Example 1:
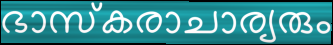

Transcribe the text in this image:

ഭാസ്കരാചാര്യരും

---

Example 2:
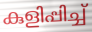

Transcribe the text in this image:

കുളിപ്പിച്ച്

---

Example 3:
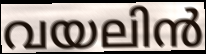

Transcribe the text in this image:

വയലിൻ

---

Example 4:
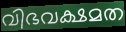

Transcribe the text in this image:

വിഭവക്ഷമത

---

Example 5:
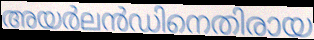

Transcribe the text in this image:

അയർലൻഡിനെതിരായ